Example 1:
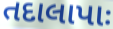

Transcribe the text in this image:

તદાલાપાઃ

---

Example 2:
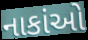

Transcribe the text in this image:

નાકાંઓ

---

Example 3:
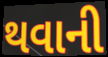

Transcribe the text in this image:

થવાની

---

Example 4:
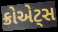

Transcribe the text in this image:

ક્રોએટ્સ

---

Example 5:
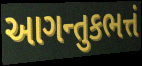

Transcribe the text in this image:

આગન્તુકભત્તં